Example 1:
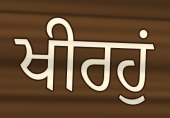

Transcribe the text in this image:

ਖੀਰਹੁਂ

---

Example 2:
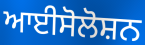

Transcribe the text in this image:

ਆਈਸੋਲੋਸ਼ਨ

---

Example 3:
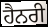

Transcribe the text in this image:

ਹੈਨਰੀ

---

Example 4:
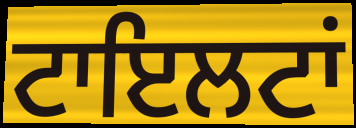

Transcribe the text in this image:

ਟਾਇਲਟਾਂ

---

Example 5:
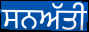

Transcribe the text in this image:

ਸਨਅੱਤੀ